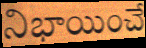
నిభాయించే